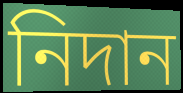
নিদান